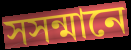
সসন্মানে